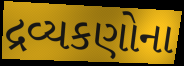
દ્રવ્યકણોના